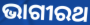
ଭାଗୀରଥ